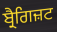
ਬ੍ਰੈਗਿਜ਼ਟ